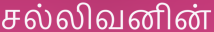
சல்லிவனின்